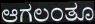
ಆಗಲಂತೂ